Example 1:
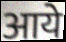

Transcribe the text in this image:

आये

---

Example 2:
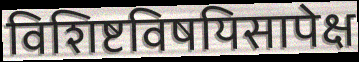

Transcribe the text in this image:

विशिष्टविषयिसापेक्ष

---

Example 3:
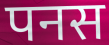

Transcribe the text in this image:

पनस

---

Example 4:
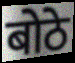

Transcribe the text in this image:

बोठे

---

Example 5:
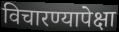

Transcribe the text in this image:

विचारण्यापेक्षा